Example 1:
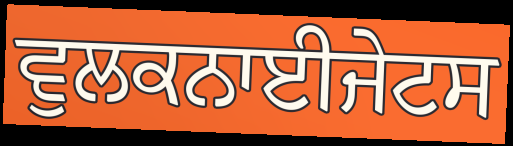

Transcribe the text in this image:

ਵੁਲਕਨਾਈਜੇਟਸ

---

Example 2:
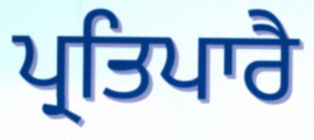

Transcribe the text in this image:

ਪ੍ਰਤਿਪਾਰੈ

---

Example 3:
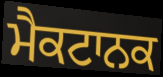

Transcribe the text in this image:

ਮੈਕਟਾਨਕ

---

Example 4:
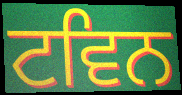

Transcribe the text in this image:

ਟਵਿਨ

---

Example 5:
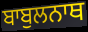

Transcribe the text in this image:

ਬਾਬੁਲਨਾਥ